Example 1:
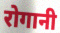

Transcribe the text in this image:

रोगानी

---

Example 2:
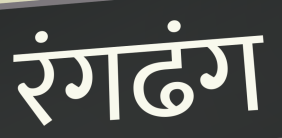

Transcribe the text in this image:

रंगढंग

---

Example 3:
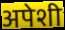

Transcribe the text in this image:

अपेशी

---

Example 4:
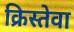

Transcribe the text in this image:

क्रिस्तेवा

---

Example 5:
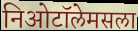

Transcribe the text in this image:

निओटॉलेमसला